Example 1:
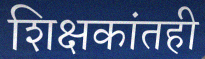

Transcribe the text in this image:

शिक्षकांतही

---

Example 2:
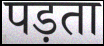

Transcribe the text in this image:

पड़ता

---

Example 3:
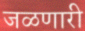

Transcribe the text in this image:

जळणारी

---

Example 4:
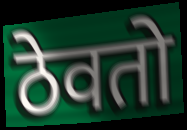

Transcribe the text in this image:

ठेवतो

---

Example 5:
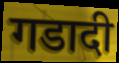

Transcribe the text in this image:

गडादी